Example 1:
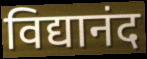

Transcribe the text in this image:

विद्यानंद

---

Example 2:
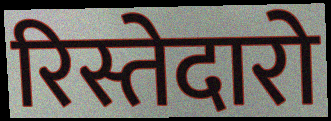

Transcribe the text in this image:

रिस्तेदारो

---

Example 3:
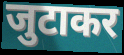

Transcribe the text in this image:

जुटाकर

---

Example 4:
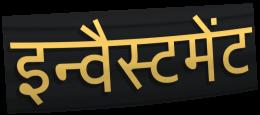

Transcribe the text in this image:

इन्वैस्टमेंट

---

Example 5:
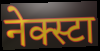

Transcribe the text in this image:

नेक्स्टा